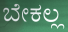
ಬೇಕಲ್ಲ